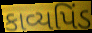
કાવ્યપિંડ